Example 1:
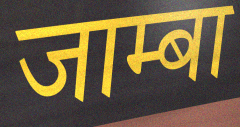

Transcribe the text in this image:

जाम्बा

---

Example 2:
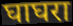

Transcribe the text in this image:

घाघरा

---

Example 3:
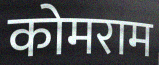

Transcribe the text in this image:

कोमराम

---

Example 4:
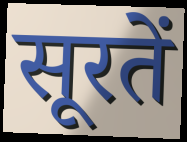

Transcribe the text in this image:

सूरतें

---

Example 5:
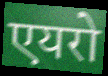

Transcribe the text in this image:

एयरो